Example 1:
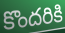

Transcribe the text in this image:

కొందరికి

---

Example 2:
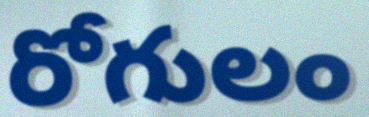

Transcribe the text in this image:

రోగులం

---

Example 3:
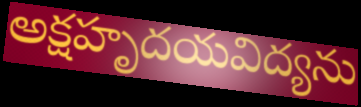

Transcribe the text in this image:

అక్షహృదయవిద్యను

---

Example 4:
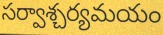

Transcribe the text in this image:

సర్వాశ్చర్యమయం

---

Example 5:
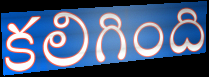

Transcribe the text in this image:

కలిగింది